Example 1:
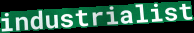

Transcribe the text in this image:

industrialist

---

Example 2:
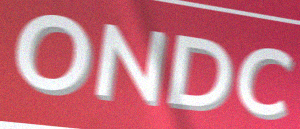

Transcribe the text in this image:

ONDC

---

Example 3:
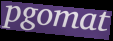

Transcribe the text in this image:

pgomat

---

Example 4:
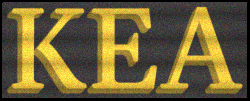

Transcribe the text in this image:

KEA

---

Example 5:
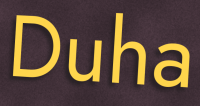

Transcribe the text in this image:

Duha